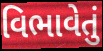
વિભાવેતું